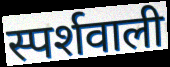
स्पर्शवाली